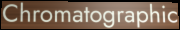
Chromatographic